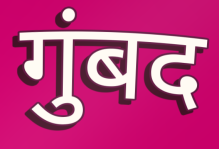
गुंबद